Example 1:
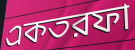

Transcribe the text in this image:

একতরফা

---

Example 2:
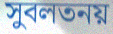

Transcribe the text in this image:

সুবলতনয়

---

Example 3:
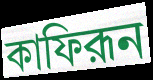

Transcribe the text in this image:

কাফিরূন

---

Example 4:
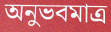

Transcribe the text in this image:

অনুভবমাত্র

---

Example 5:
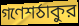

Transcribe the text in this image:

গণেশঠাকুর